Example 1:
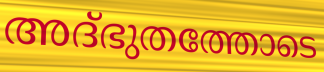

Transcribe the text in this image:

അദ്ഭുതത്തോടെ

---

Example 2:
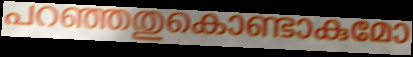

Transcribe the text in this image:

പറഞ്ഞതുകൊണ്ടാകുമോ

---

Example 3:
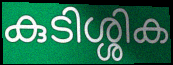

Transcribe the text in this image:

കുടിശ്ശിക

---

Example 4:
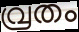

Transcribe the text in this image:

വ്രതം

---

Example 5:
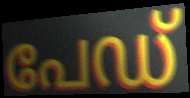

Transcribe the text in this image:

പേഡ്